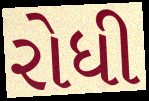
રોધી